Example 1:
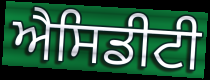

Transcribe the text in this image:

ਐਸਿਡੀਟੀ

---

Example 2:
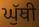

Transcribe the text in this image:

ਘੁੱਥੀ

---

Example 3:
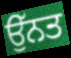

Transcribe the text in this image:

ਉੱਨਤ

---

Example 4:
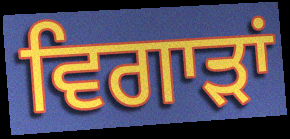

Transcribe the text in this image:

ਵਿਗਾੜਾਂ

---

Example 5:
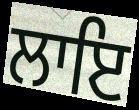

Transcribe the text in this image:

ਲਾਇ